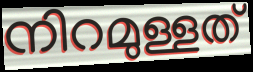
നിറമുള്ളത്